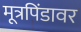
मूत्रपिंडावर